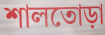
শালতোড়া